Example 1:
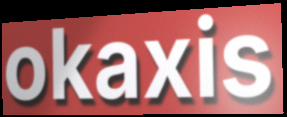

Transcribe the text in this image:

okaxis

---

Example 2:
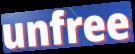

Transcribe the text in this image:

unfree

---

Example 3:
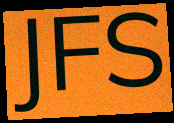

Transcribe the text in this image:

JFS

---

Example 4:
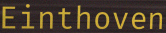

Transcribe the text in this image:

Einthoven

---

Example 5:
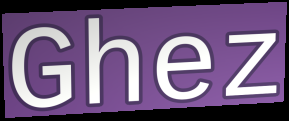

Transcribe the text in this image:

Ghez